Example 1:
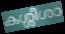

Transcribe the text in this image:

കശ്ശീശാ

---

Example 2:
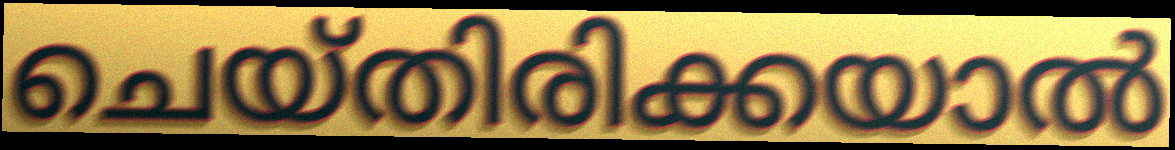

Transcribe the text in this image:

ചെയ്തിരിക്കയാൽ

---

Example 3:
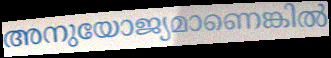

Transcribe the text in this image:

അനുയോജ്യമാണെങ്കിൽ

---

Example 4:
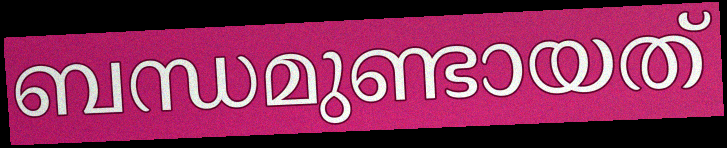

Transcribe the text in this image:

ബന്ധമുണ്ടായത്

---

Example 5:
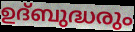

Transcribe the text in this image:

ഉദ്ബുദ്ധരും